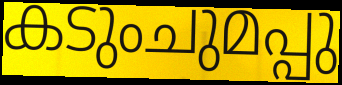
കടുംചുമപ്പു